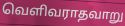
வெளிவராதவாறு